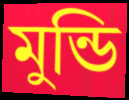
মুন্ডি